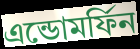
এন্ডোমর্ফিন